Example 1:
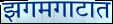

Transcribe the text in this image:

झगमगाटात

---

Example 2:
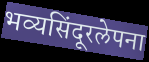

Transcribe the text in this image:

भव्यसिंदूरलेपना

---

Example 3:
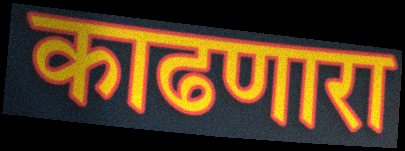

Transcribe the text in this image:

काढणारा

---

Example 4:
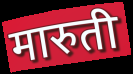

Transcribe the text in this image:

मारुती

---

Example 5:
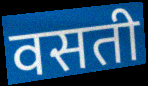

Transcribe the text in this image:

वसती